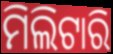
ମିଲିଟାରି